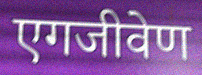
एगजीवेण